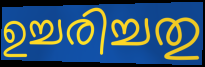
ഉച്ചരിച്ചതു